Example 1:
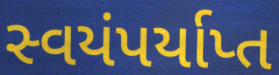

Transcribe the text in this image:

સ્વયંપર્યાપ્ત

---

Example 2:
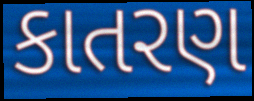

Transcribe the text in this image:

કાતરણ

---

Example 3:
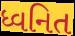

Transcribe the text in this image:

ધ્વનિત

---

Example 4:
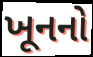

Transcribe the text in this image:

ખૂનનો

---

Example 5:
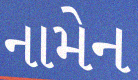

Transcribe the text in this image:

નામેન